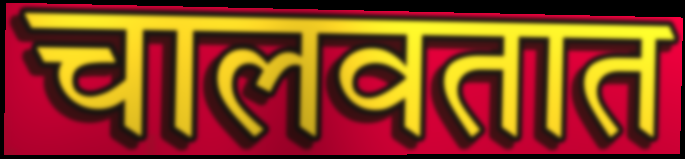
चालवतात